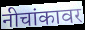
नीचांकावर